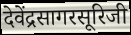
देवेंद्रसागरसूरिजी